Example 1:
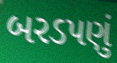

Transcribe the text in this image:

બરડપણું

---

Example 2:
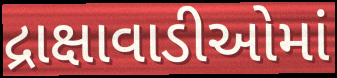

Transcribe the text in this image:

દ્રાક્ષાવાડીઓમાં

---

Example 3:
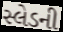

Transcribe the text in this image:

સ્લેડની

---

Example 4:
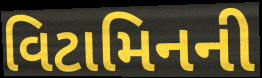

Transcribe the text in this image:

વિટામિનની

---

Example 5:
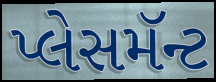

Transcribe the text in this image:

પ્લેસમૅન્ટ